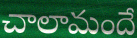
చాలామందే